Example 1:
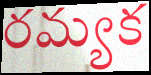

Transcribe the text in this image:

రమ్యక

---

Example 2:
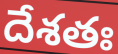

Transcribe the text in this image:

దేశతః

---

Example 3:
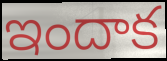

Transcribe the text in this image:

ఇందాక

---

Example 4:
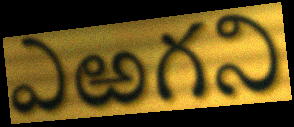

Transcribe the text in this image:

ఎఱగని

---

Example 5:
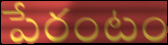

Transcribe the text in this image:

పేరంటం